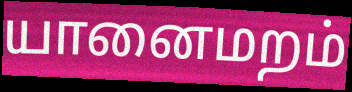
யானைமறம்